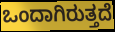
ಒಂದಾಗಿರುತ್ತದೆ